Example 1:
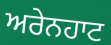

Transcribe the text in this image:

ਅਰੇਨਹਾਟ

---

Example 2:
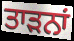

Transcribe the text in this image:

ਤਾੜਨਾਂ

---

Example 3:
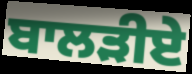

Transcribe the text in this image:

ਬਾਲੜੀਏ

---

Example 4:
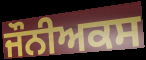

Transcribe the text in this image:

ਜੌਨੀਅਕਸ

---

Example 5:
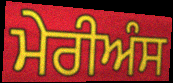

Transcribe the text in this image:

ਮੇਰੀਅੰਸ